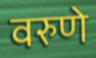
वरुणे